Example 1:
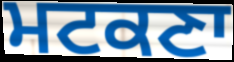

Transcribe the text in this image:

ਮਟਕਣਾ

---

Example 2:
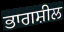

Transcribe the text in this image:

ਭਾਗਸ਼ੀਲ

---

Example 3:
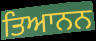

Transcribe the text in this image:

ਤਿਆਨਨ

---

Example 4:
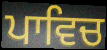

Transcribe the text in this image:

ਪਾਵਿਚ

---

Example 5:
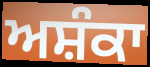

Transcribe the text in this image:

ਅਸ਼ੰਕਾ